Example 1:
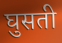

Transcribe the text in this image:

घुसती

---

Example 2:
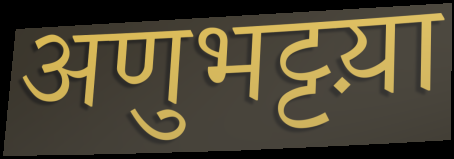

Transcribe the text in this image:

अणुभट्टय़ा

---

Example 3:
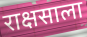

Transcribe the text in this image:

राक्षसाला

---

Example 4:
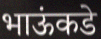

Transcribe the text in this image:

भाऊंकडे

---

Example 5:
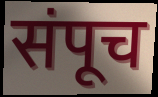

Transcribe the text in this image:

संपूच